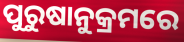
ପୁରୁଷାନୁକ୍ରମରେ